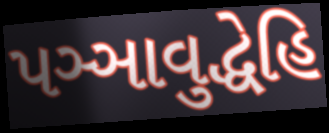
પઞ્ઞાવુદ્ધેહિ